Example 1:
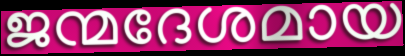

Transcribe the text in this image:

ജന്മദേശമായ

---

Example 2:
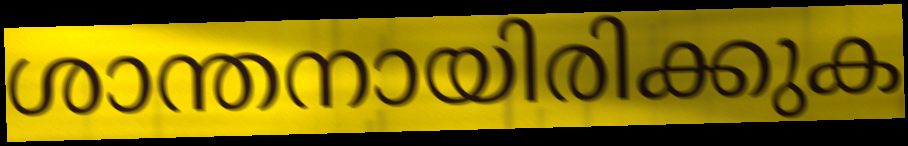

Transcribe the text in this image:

ശാന്തനായിരിക്കുക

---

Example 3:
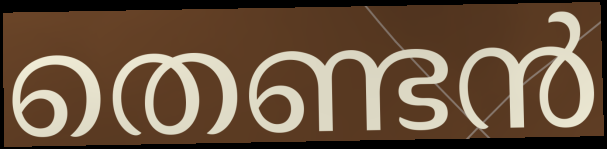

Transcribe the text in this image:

തെണ്ടൻ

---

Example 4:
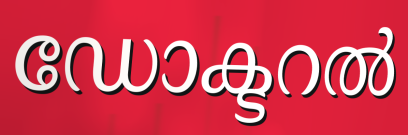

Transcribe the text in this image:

ഡോക്ടറൽ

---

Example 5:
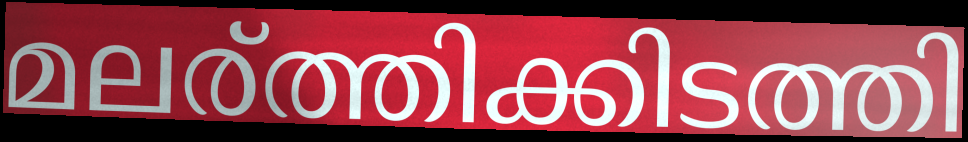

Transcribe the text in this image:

മലര്ത്തിക്കിടത്തി